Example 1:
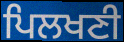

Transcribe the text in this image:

ਪਿਲਖਣੀ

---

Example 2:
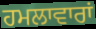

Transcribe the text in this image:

ਹਮਲਾਵਾਰਾਂ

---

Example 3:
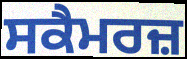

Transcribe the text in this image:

ਸਕੈਮਰਜ਼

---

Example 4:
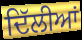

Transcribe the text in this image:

ਦਿੱਲੀਆਂ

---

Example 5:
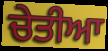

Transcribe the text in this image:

ਚੇਤੀਆ